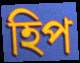
হিপ